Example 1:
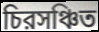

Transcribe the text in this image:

চিরসঞ্চিত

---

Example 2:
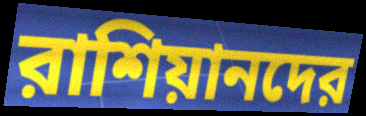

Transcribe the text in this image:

রাশিয়ানদের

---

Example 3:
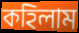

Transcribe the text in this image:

কহিলাম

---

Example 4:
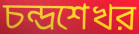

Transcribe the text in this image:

চন্দ্রশেখর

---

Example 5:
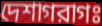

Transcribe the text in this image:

দেশাগরাগঃ